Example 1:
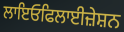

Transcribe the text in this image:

ਲਾਇਓਫਿਲਾਈਜ਼ੇਸ਼ਨ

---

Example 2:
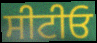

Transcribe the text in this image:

ਸੀਟੀਓ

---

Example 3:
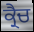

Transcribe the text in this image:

ਕ੍ਰੈਚ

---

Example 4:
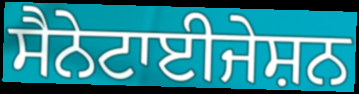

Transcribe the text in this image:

ਸੈਨੇਟਾਈਜੇਸ਼ਨ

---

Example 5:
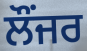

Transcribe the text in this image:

ਲੌਂਜਰ